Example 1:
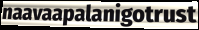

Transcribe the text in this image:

naavaapalanigotrust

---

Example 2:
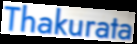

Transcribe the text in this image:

Thakurata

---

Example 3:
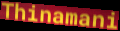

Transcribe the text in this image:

Thinamani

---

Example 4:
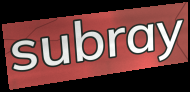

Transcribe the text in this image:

subray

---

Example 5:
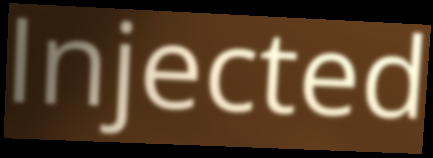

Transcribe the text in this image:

Injected